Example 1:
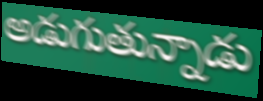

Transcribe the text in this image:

అడుగుతున్నాడు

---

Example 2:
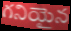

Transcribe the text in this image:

గనియైన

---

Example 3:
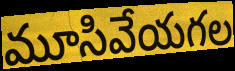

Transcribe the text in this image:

మూసివేయగల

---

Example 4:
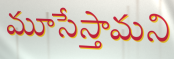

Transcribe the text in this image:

మూసేస్తామని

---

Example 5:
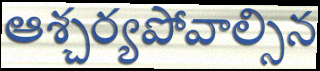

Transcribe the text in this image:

ఆశ్చర్యపోవాల్సిన